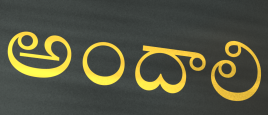
అందాలి